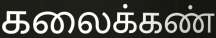
கலைக்கண்